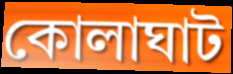
কোলাঘাট